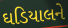
ઘડિયાલને